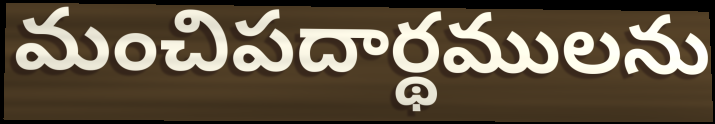
మంచిపదార్థములను